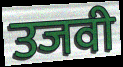
उजवी